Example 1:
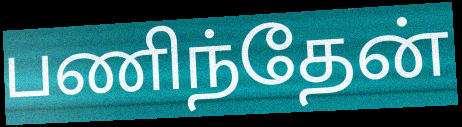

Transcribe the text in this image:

பணிந்தேன்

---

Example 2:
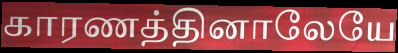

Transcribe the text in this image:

காரணத்தினாலேயே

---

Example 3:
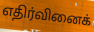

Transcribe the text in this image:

எதிர்வினைக்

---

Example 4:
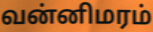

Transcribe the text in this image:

வன்னிமரம்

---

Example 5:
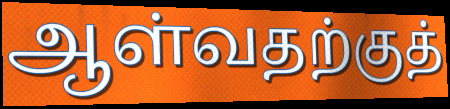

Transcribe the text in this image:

ஆள்வதற்குத்